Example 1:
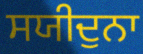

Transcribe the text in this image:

ਸਯੀਦੁਨਾ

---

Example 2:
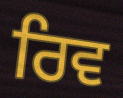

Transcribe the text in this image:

ਰਿਵ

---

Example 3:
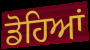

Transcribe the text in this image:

ਡੋਹਿਆਂ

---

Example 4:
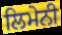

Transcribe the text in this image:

ਲਿਮੇਨੀ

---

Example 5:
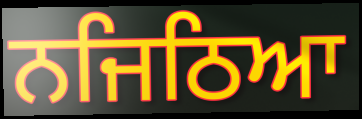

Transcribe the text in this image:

ਨਜਿਠਿਆ